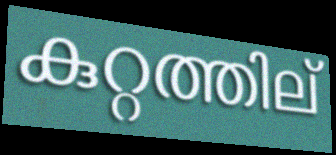
കുറ്റത്തില്